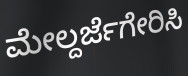
ಮೇಲ್ದರ್ಜೆಗೇರಿಸಿ